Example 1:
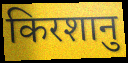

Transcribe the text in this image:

किरशानु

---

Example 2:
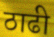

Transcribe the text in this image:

ठाढी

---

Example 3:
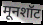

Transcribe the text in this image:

मूनशॉट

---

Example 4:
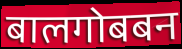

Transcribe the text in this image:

बालगोबबन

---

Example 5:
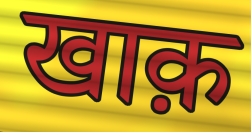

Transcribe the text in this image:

खाक़